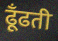
ढूँढती